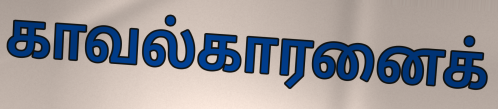
காவல்காரனைக்